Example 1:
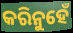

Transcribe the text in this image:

କରିନୁହେଁ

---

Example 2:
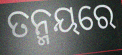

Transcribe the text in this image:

ତନ୍ମୟରେ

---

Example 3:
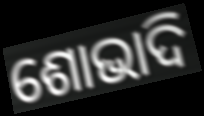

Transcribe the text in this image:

ଶୋଭାଦି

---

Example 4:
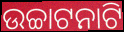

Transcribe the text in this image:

ଉଚ୍ଚାଟନାଟି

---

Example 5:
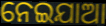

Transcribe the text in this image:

ନେଇଯାଆ